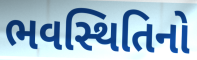
ભવસ્થિતિનો